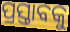
ପ୍ରସ୍ତାବକୁ